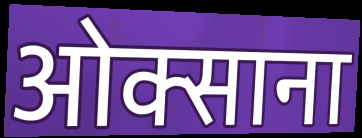
ओक्साना